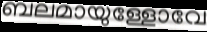
ബലമായുള്ളോവേ